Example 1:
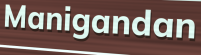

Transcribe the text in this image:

Manigandan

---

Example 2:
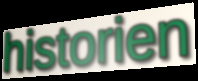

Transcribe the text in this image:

historien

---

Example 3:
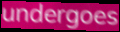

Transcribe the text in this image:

undergoes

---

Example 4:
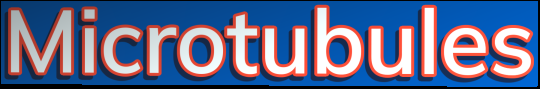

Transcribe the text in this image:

Microtubules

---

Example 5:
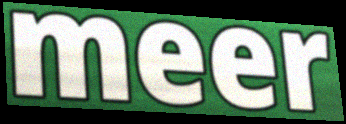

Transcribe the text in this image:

meer